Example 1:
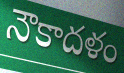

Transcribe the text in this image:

నౌకాదళం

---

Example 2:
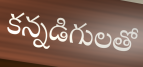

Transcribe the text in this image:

కన్నడిగులతో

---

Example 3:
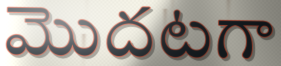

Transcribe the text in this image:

మొదటగా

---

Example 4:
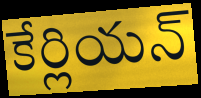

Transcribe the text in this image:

కేర్లియన్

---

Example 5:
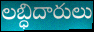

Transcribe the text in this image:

లబ్ధిదారులు